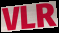
VLR